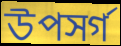
উপসর্গ